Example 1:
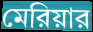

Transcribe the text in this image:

মেরিয়ার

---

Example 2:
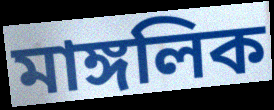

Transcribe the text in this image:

মাঙ্গলিক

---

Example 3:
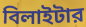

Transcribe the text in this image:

বিলাইটার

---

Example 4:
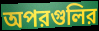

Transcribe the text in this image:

অপরগুলির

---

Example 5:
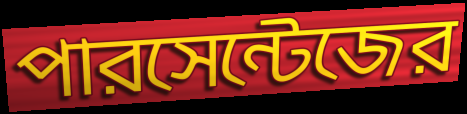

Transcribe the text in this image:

পারসেন্টেজের